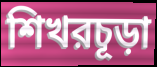
শিখরচূড়া